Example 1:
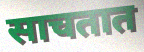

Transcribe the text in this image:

साचतात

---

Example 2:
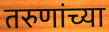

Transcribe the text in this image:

तरुणांच्या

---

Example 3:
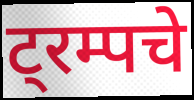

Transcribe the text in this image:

ट्रम्पचे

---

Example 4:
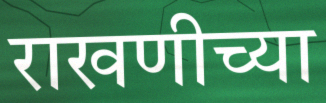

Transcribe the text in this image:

राखणीच्या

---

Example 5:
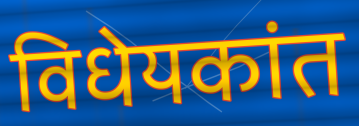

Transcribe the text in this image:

विधेयकांत